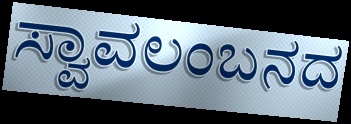
ಸ್ವಾವಲಂಬನದ